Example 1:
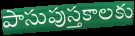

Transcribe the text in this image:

పాసుపుస్తకాలకు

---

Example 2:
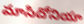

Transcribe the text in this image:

మాసిదోనియా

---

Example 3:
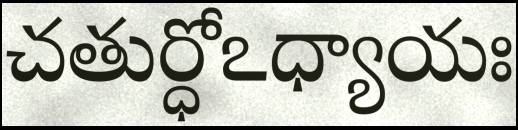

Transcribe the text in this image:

చతుర్ధోఽధ్యాయః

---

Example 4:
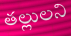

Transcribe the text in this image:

తల్లులని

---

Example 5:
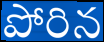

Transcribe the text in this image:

పోరిన